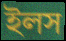
ইলস